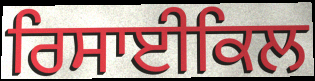
ਰਿਸਾਈਕਿਲ